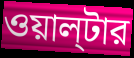
ওয়াল্‌টার